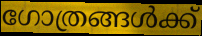
ഗോത്രങ്ങൾക്ക്